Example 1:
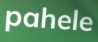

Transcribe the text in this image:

pahele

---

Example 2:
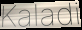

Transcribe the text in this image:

Kaladi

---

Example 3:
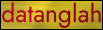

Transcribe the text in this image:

datanglah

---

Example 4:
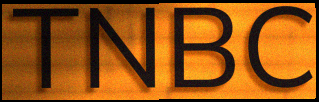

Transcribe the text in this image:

TNBC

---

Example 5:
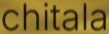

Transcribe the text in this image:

chitala